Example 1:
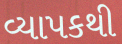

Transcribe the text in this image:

વ્યાપકથી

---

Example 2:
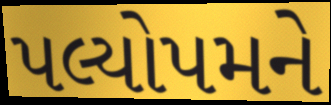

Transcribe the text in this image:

પલ્યોપમને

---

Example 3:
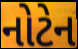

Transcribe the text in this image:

નોટેન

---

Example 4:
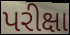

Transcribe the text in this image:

પરીક્ષા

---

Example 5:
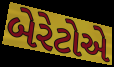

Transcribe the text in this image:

બેરેટોએ